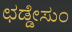
ಛಡ್ಡೇಸುಂ